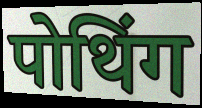
पोथिंग